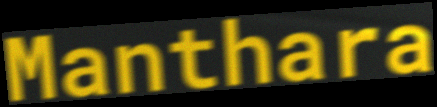
Manthara